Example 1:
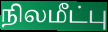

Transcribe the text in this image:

நிலமீட்பு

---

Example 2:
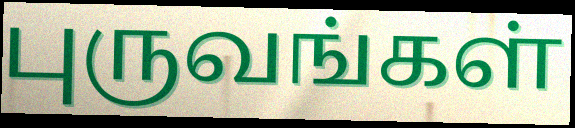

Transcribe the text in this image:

புருவங்கள்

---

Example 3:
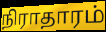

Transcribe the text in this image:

நிராதாரம்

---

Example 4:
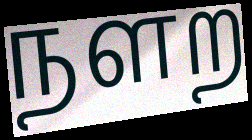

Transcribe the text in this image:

நளற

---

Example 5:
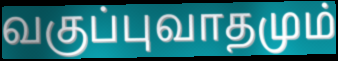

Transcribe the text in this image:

வகுப்புவாதமும்